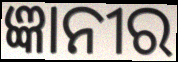
ଜ୍ଞାନୀର